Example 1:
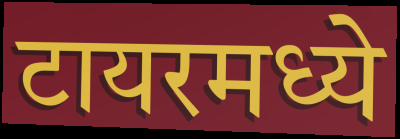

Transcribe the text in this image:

टायरमध्ये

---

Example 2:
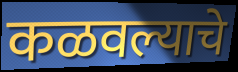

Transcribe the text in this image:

कळवल्याचे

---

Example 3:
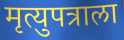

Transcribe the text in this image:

मृत्युपत्राला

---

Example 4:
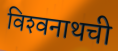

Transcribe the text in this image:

विश्वनाथची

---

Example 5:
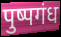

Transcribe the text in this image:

पुष्पगंध